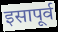
इसापूर्व